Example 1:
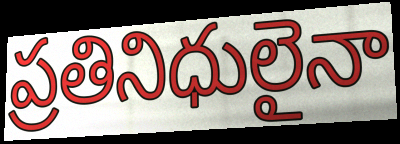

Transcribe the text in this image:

ప్రతినిధులైనా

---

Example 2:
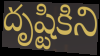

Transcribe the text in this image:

దృష్టికిని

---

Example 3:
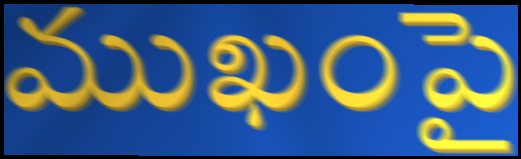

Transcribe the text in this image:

ముఖంపై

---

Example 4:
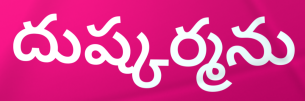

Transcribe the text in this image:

దుష్కర్మను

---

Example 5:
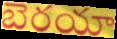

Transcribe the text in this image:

బెరయా